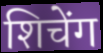
शिचेंग